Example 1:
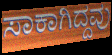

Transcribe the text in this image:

ಸಾಕಾಗಿದ್ದವು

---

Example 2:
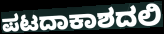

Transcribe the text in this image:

ಪಟದಾಕಾಶದಲಿ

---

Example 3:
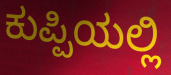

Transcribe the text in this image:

ಕುಪ್ಪಿಯಲ್ಲಿ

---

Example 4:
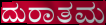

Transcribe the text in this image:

ದುರಾತಮ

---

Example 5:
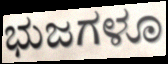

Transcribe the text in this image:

ಭುಜಗಳೂ